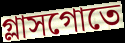
গ্লাসগোতে